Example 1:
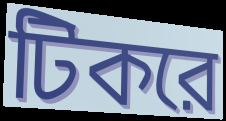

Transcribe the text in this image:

টিকরে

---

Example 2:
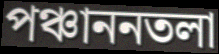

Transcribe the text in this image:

পঞ্চাননতলা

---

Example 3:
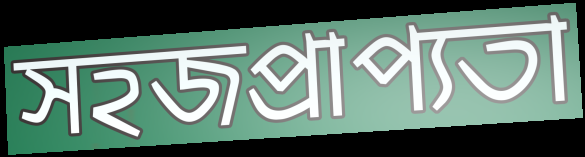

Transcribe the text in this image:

সহজপ্রাপ্যতা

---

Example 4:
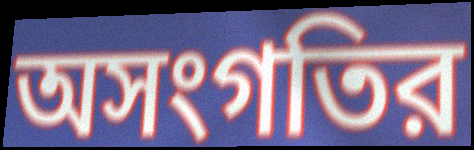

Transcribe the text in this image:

অসংগতির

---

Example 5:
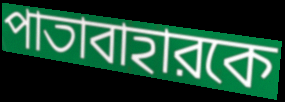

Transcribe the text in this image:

পাতাবাহারকে